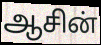
ஆசின்